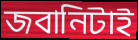
জবানিটাই